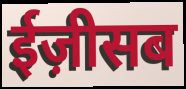
ईज़ीसब